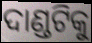
ଦାଣ୍ଡଟିକୁ